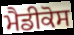
ਮੈਡੀਕੋਸ